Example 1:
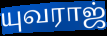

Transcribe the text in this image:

யுவராஜ்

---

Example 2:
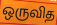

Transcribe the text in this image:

ஒருவித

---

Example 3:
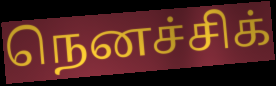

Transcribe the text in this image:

நெனச்சிக்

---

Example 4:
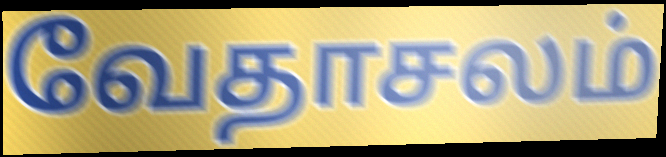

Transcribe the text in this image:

வேதாசலம்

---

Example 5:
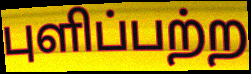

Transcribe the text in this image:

புளிப்பற்ற